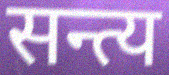
सन्त्य